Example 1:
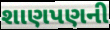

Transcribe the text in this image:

શાણપણની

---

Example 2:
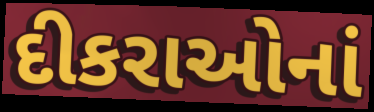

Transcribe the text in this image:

દીકરાઓનાં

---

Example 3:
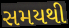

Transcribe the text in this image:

સમયથી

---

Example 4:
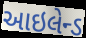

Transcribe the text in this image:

આઇલેન્ડ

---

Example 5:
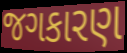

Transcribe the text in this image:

જગકારણ